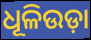
ଧୂଳିଉଡ଼ା